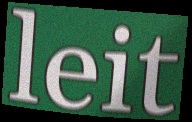
leit